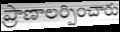
ప్రాణాలర్పించారు